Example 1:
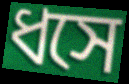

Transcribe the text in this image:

ধসে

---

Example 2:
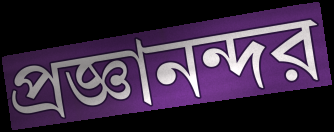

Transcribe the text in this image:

প্রজ্ঞানন্দর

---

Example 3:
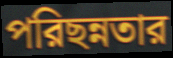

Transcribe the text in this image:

পরিছন্নতার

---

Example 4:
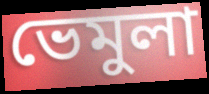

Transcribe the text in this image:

ভেমুলা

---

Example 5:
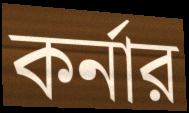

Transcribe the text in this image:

কর্নার